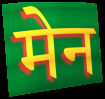
मेन